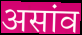
असांव